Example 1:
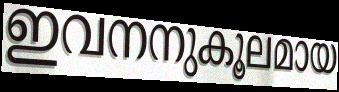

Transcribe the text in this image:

ഇവനനുകൂലമായ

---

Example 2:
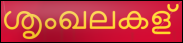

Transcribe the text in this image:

ശൃംഖലകള്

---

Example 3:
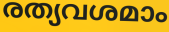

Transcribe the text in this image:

രത്യവശമാം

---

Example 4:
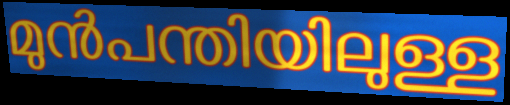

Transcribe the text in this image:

മുൻപന്തിയിലുള്ള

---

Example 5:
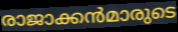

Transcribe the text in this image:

രാജാക്കൻമാരുടെ